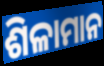
ଶିଳାମାନ